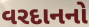
વરદાનનો